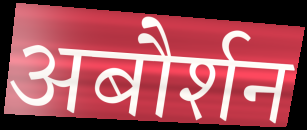
अबौर्शन